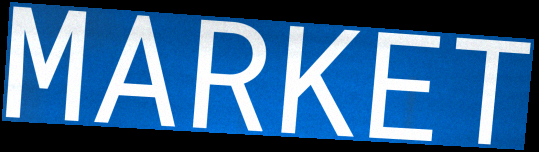
MARKET